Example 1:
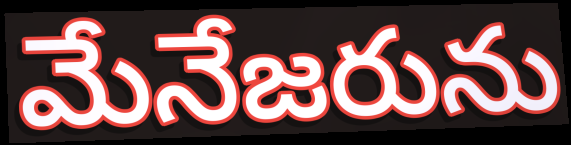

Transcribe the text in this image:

మేనేజరును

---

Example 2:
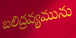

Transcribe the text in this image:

బలిద్రవ్యమును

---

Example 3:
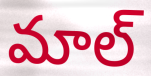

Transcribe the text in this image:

మాల్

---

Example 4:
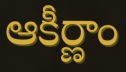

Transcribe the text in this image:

ఆకీర్ణాం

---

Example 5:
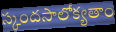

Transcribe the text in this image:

స్కందసాలోక్యతాం